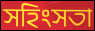
সহিংসতা